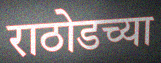
राठोडच्या